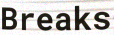
Breaks